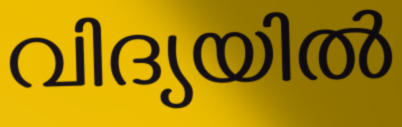
വിദ്യയിൽ